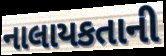
નાલાયકતાની